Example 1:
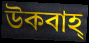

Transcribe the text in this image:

উকবাহ্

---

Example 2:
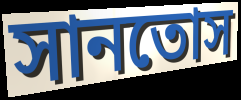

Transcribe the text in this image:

সানতোস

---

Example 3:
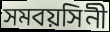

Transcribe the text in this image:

সমবয়সিনী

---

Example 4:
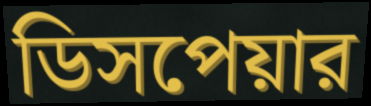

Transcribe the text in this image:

ডিসপেয়ার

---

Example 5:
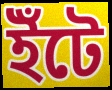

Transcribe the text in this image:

ইঁটে